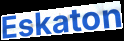
Eskaton